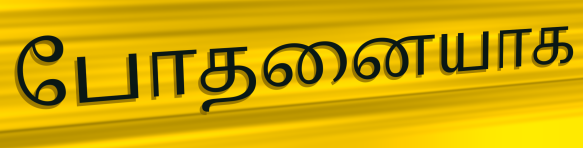
போதனையாக